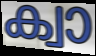
ക്വാ